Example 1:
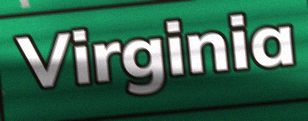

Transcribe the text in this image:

Virginia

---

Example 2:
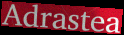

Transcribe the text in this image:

Adrastea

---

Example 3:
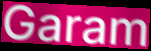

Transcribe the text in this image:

Garam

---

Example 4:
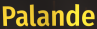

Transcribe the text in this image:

Palande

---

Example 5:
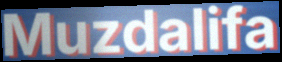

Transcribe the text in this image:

Muzdalifa